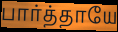
பார்த்தாயே